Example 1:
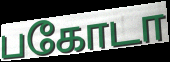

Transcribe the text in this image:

பகோடா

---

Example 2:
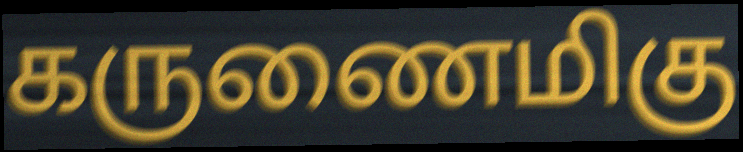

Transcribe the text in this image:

கருணைமிகு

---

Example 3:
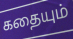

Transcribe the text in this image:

கதையும்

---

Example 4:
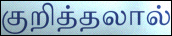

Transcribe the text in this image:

குறித்தலால்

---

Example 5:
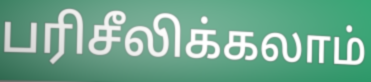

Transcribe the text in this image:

பரிசீலிக்கலாம்